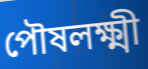
পৌষলক্ষ্মী